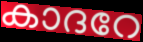
കാദറേ